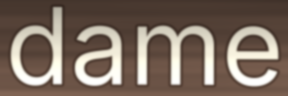
dame